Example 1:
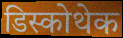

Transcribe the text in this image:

डिस्कोथेक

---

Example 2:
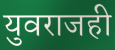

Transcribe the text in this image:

युवराजही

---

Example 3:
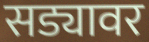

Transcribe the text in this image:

सड्यावर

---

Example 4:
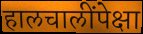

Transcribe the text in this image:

हालचालींपेक्षा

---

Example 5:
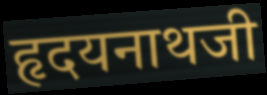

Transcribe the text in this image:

हृदयनाथजी